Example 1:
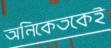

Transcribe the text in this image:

অনিকেতকেই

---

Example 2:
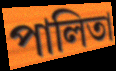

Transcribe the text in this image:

পালিতা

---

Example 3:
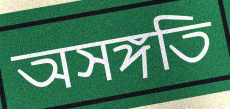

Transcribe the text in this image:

অসঙ্গতি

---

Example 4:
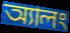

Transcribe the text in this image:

অ্যালং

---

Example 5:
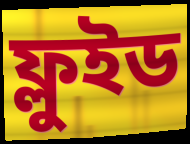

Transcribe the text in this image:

ফ্লুইড